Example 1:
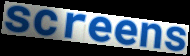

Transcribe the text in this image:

screens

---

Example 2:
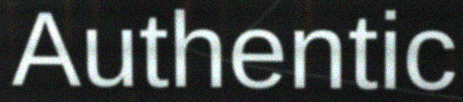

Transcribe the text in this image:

Authentic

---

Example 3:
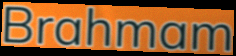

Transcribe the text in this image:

Brahmam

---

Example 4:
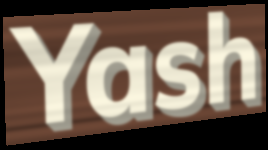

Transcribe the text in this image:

Yash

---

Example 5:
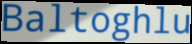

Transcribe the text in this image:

Baltoghlu